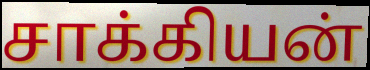
சாக்கியன்